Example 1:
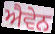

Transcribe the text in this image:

ਐਵੇਨ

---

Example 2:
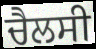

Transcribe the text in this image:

ਚੈਲਸੀ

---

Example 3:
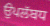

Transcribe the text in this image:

ਉਪਲੱਬਧ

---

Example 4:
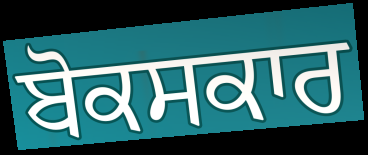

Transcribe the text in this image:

ਬੋਕਸਕਾਰ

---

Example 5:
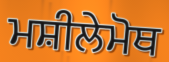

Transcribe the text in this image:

ਮਸ਼ੀਲੇਮੋਥ